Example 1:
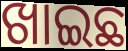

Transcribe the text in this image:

ଖାଇଛ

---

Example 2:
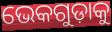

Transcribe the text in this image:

ଭେକଗୁଡ଼ାକୁ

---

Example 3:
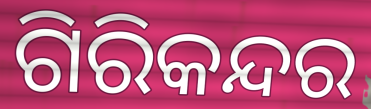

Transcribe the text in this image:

ଗିରିକନ୍ଦର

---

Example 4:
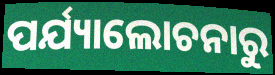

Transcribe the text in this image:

ପର୍ଯ୍ୟାଲୋଚନାରୁ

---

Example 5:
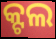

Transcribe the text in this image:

କ୍ଟଲ